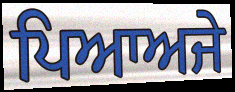
ਪਿਆਅਜੇ